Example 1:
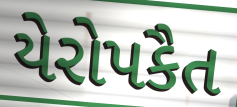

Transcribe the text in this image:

યેરોપકૈત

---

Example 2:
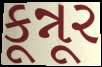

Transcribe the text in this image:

કૂન્નૂર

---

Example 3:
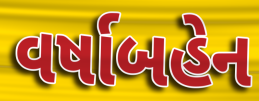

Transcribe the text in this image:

વર્ષાબહેન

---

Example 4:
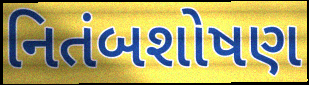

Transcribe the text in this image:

નિતંબશોષણ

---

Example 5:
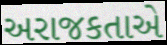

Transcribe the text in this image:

અરાજકતાએ